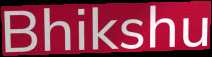
Bhikshu